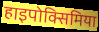
हाइपोक्सिमिया